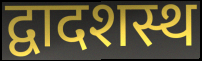
द्वादशस्थ